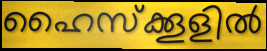
ഹൈസ്ക്കൂളിൽ